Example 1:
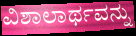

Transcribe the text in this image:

ವಿಶಾಲಾರ್ಥವನ್ನು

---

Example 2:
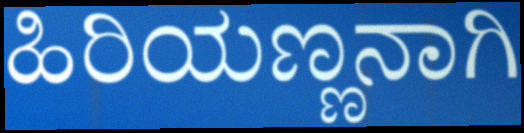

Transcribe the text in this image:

ಹಿರಿಯಣ್ಣನಾಗಿ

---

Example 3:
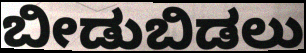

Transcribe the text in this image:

ಬೀಡುಬಿಡಲು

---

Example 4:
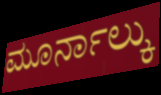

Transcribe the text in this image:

ಮೂರ್ನಾಲ್ಕು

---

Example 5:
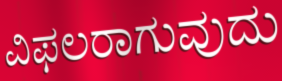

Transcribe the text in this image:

ವಿಫಲರಾಗುವುದು